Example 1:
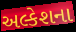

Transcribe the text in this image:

અલ્કેશના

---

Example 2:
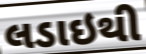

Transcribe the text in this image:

લડાઇથી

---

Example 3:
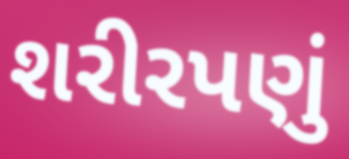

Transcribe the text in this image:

શરીરપણું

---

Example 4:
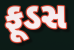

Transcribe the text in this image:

ફૂડસ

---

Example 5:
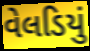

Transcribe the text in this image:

વેલડિયું